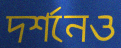
দর্শনেও